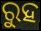
ରୁହ